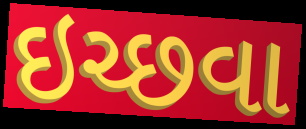
ઇચ્છવા